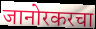
जानोरकरचा